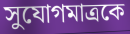
সুযোগমাত্রকে